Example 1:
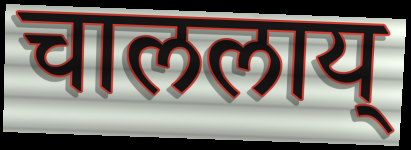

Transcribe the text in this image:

चाललाय्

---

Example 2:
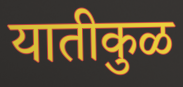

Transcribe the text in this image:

यातीकुळ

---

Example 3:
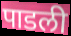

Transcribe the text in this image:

पाडली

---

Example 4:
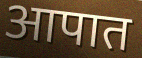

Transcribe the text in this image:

आपात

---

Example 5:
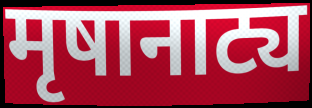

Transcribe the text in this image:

मृषानाट्य